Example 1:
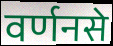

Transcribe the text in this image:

वर्णनसे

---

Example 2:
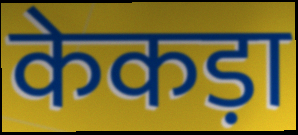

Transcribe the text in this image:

केकड़ा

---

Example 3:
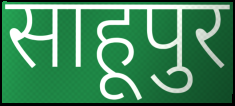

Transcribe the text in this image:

साहूपुर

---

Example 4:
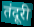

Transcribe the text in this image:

तंदूरी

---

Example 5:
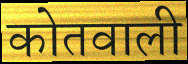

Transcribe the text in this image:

कोतवाली